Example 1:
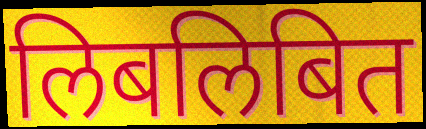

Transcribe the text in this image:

लिबलिबित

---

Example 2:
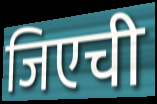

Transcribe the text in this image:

जिएची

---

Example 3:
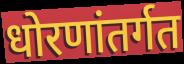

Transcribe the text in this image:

धोरणांतर्गत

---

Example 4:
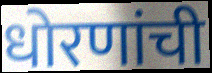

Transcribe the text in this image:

धोरणांची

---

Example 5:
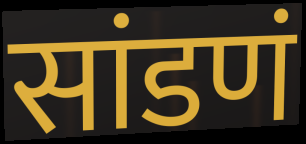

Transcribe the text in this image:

सांडणं